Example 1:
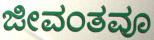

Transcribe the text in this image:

ಜೀವಂತವೂ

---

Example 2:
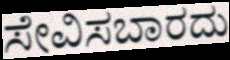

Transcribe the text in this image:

ಸೇವಿಸಬಾರದು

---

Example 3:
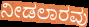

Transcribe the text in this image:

ನೀಡಲಾರವು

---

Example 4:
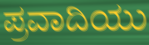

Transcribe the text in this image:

ಪ್ರವಾದಿಯು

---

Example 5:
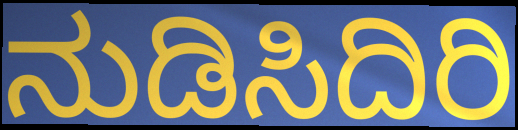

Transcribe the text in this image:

ನುಡಿಸಿದಿರಿ